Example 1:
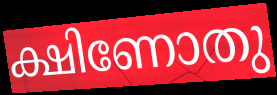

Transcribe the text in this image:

ക്ഷിണോതു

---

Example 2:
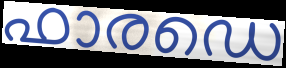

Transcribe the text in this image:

ഫാരഡെ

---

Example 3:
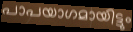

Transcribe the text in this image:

പാപയാഗമായിട്ടും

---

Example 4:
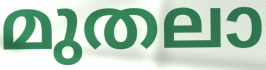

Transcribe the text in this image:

മുതലാ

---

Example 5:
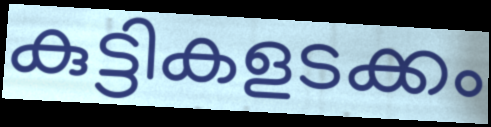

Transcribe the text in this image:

കുട്ടികളടക്കം